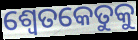
ଶ୍ୱେତକେତୁକୁ